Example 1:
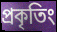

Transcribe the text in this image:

প্রকৃতিং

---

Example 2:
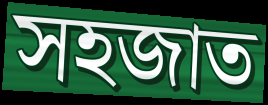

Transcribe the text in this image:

সহজাত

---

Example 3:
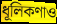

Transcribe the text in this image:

ধূলিকণাও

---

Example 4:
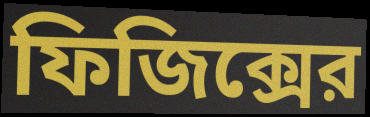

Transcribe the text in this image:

ফিজিক্সের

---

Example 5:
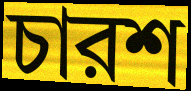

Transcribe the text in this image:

চারশ